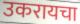
उकरायचा